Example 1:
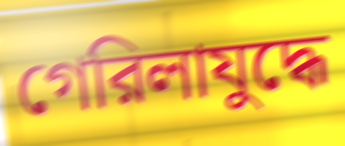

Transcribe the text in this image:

গেরিলাযুদ্ধে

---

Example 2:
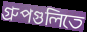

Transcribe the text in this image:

গ্রুপগুলিতে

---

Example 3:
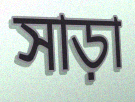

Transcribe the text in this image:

সাড়া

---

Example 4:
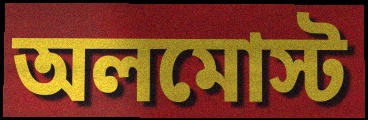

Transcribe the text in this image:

অলমোস্ট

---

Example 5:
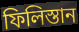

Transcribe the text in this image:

ফিলিস্তান